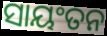
ସାୟଂତନ